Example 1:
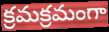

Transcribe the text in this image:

క్రమక్రమంగా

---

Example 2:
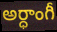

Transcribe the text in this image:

అర్ధాంగీ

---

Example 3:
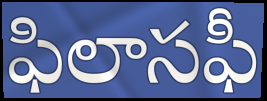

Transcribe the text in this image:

ఫిలాసఫీ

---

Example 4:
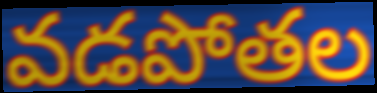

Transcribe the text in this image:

వడపోతల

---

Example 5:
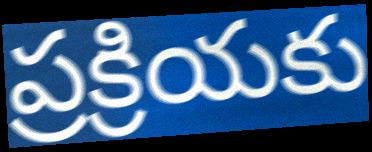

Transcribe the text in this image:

ప్రక్రియకు